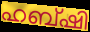
ഹബ്ഷി